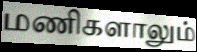
மணிகளாலும்